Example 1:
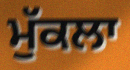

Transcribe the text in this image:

ਮੁੱਕਲਾ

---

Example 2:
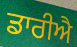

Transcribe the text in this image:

ਡਾਰੀਐ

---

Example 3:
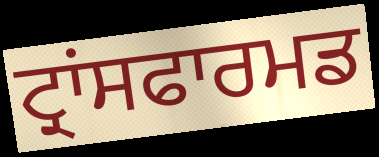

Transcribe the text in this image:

ਟ੍ਰਾਂਸਫਾਰਮਡ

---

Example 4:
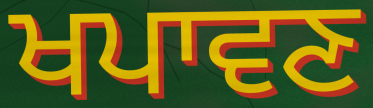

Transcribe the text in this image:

ਖਪਾਵਣ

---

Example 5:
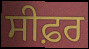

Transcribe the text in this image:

ਸੀਫ਼ਰ